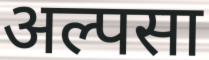
अल्पसा